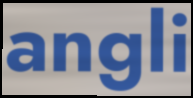
angli